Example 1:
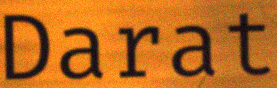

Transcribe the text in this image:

Darat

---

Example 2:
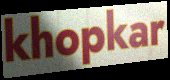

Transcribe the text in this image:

khopkar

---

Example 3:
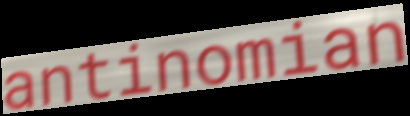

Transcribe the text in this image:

antinomian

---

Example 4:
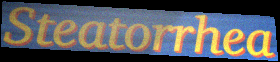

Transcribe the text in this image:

Steatorrhea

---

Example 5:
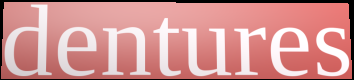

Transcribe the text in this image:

dentures